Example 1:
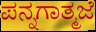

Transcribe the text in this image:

ಪನ್ನಗಾತ್ಮಜೆ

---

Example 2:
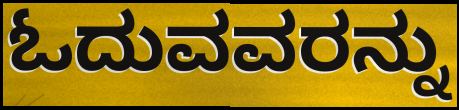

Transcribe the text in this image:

ಓದುವವರನ್ನು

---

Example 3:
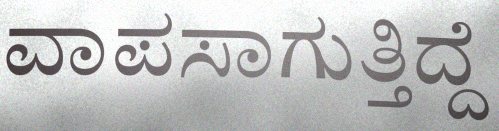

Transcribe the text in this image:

ವಾಪಸಾಗುತ್ತಿದ್ದೆ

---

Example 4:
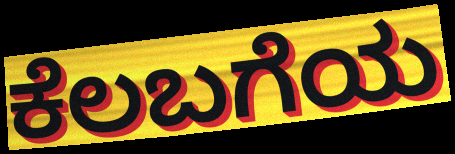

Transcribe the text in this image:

ಕೆಲಬಗೆಯ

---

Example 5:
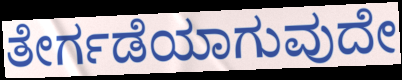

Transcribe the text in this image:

ತೇರ್ಗಡೆಯಾಗುವುದೇ